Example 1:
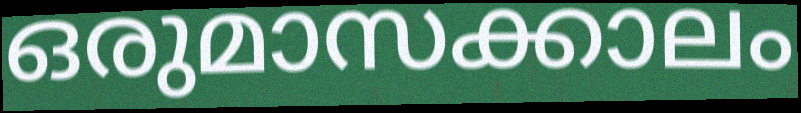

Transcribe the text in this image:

ഒരുമാസക്കാലം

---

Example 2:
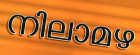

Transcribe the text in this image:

നിലാമഴ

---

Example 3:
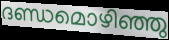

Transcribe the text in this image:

ദണ്ഡമൊഴിഞ്ഞു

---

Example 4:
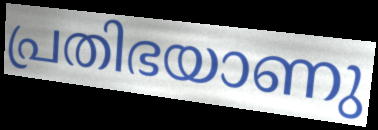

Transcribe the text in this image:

പ്രതിഭയാണു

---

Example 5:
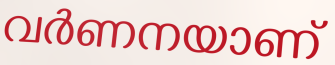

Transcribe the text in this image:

വർണനയാണ്